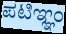
ಪಟಿಞ್ಞಂ